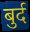
बुर्द